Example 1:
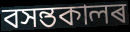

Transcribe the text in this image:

বসন্তকালৰ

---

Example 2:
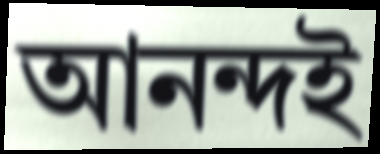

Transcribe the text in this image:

আনন্দই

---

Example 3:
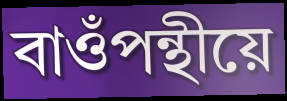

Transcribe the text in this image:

বাওঁপন্থীয়ে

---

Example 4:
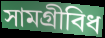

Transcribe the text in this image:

সামগ্ৰীবিধ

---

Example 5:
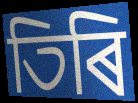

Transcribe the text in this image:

তিৰি